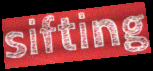
sifting